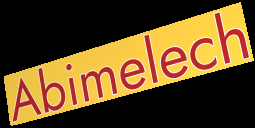
Abimelech